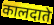
कालदाते